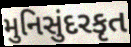
મુનિસુંદરકૃત